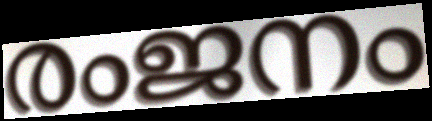
രംജനം